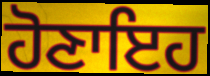
ਹੋਣਾਇਹ